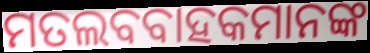
ମତଲବବାହକମାନଙ୍କ